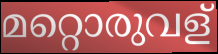
മറ്റൊരുവള്